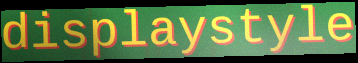
displaystyle